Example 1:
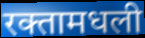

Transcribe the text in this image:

रक्तामधली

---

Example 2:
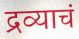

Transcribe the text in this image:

द्रव्याचं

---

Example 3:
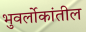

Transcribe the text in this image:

भुवर्लोकांतील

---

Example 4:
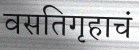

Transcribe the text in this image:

वसतिगृहाचं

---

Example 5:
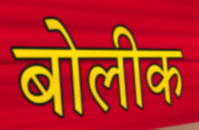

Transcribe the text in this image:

बोलीक